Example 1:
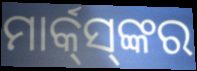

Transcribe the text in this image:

ମାର୍କ୍‍ସ୍‍ଙ୍କର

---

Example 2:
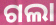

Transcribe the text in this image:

ଗଲା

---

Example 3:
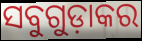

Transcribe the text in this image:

ସବୁଗୁଡ଼ାକର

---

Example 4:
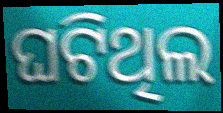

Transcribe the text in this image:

ଘଟିଥିଲ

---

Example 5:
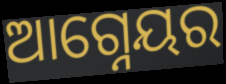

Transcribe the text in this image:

ଆଗ୍ନେୟର